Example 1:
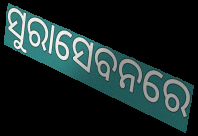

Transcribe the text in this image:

ସୁରାସେବନରେ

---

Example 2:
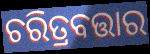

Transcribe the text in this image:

ଚରିତ୍ରବତ୍ତାର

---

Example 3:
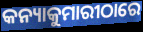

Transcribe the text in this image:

କନ୍ୟାକୁମାରୀଠାରେ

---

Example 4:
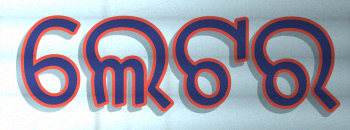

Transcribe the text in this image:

ଲେଟର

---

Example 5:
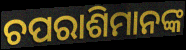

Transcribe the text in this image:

ଚପରାଶିମାନଙ୍କ